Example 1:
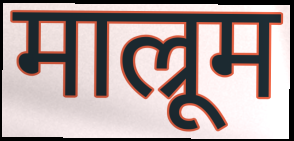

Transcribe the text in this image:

माल्रूम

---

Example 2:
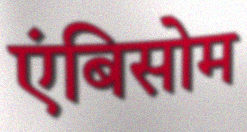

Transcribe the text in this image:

एंबिसोम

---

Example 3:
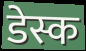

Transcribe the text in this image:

डेस्क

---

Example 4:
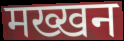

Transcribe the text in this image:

मख्खन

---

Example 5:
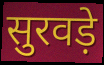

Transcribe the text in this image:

सुरवड़े